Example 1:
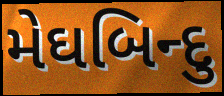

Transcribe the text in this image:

મેઘબિન્દુ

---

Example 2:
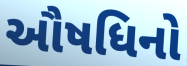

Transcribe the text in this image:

ઔષધિનો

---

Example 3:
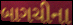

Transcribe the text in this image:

બાગચીના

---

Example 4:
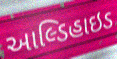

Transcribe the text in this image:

આલ્ડિહાઇડ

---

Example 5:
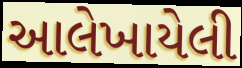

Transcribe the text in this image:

આલેખાયેલી